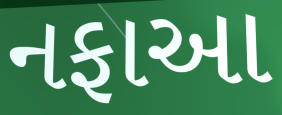
નફાઆ